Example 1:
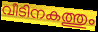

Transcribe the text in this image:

വീടിനകത്തും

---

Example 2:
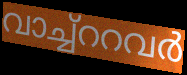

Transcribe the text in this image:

വാച്ച്ററവർ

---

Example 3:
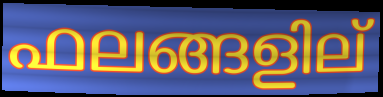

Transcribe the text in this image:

ഫലങ്ങളില്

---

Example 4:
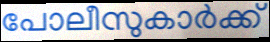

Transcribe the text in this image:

പോലീസുകാർക്ക്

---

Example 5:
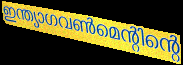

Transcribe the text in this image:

ഇന്ത്യാഗവൺമെന്റിന്റെ